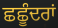
ਛਛੂੰਦਰਾਂ